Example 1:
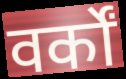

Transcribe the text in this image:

वर्कों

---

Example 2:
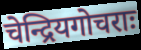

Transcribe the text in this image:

चेन्द्रियगोचराः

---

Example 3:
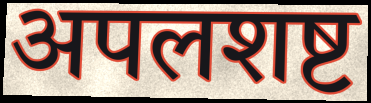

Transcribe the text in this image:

अपलशष्ट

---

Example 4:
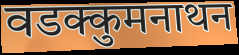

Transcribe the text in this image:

वडक्कुमनाथन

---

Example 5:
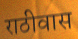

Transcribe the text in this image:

राठीवास